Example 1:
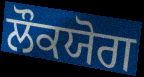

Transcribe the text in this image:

ਲੌਕਯੋਗ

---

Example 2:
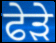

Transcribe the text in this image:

ਫੇੜੇ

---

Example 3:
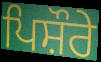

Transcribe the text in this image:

ਪਿਸ਼ੌਰੇ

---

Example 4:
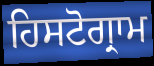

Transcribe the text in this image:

ਹਿਸਟੋਗ੍ਰਾਮ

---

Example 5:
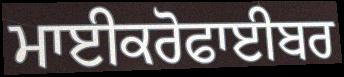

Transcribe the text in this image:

ਮਾਈਕਰੋਫਾਈਬਰ